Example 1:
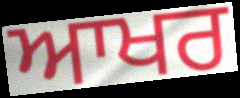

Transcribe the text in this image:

ਆਖਰ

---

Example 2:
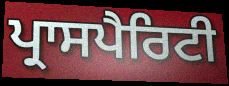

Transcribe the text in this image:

ਪ੍ਰਾਸਪੈਰਿਟੀ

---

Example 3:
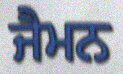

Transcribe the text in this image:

ਜੈਮਨ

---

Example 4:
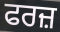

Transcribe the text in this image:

ਫਰਜ਼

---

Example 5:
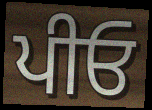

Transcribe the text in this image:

ਪੀਓ